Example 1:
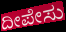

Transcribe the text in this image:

ದೀಪೇಸು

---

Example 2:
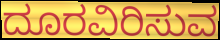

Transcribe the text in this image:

ದೂರವಿರಿಸುವ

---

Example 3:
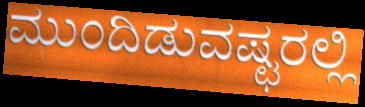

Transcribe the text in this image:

ಮುಂದಿಡುವಷ್ಟರಲ್ಲಿ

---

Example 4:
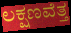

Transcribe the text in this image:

ಲಕ್ಷಣವೆತ್ತ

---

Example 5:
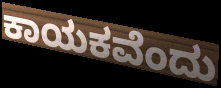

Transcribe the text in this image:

ಕಾಯಕವೆಂದು